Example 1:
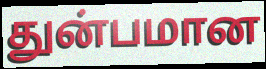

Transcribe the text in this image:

துன்பமான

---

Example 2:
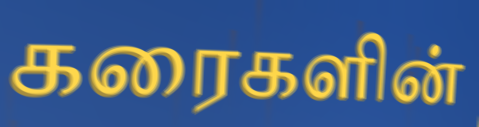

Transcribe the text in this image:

கரைகளின்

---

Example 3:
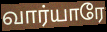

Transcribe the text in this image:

வார்யாரே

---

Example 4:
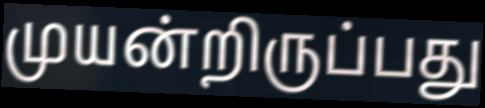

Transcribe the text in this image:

முயன்றிருப்பது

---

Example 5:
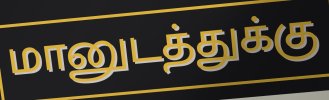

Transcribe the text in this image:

மானுடத்துக்கு